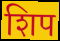
शिप